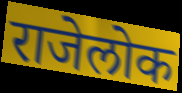
राजेलोक